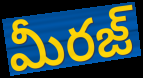
మీరజ్